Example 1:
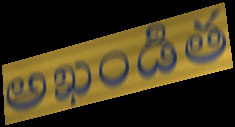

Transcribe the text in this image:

అఖండిత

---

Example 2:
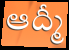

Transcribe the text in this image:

ఆద్మీ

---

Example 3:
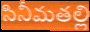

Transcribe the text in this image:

సినీమతల్లి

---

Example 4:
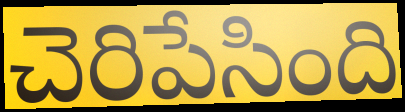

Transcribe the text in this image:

చెరిపేసింది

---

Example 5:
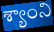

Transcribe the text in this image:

శ్యాంని